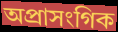
অপ্ৰাসংগিক